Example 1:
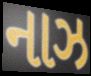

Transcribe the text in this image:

નાઝ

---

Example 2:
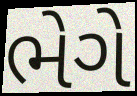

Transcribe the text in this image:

ભેગે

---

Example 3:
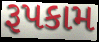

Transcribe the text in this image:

રૂપકામ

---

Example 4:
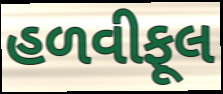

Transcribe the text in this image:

હળવીફૂલ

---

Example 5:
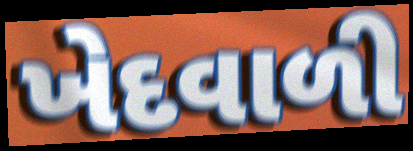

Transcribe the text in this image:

ખેદવાળી